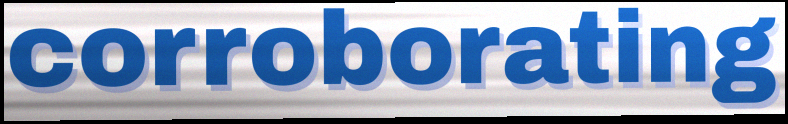
corroborating